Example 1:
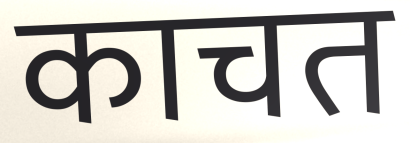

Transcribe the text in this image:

काचत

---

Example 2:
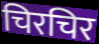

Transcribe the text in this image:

चिरचिर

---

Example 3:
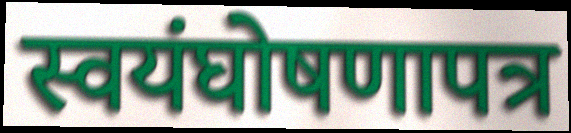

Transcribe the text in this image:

स्वयंघोषणापत्र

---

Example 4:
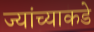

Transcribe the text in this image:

ज्यांच्याकडे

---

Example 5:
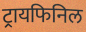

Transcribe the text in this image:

ट्रायफिनिल